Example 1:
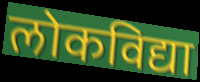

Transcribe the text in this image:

लोकविद्या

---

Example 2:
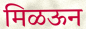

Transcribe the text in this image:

मिळऊन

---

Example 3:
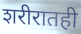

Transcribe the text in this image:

शरीरातही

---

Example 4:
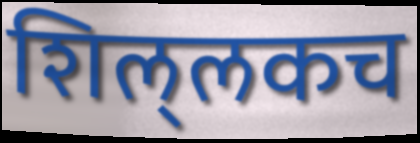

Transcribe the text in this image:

शिल्लकच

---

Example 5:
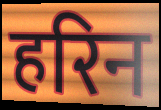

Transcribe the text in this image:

हरिन